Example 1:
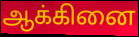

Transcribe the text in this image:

ஆக்கினை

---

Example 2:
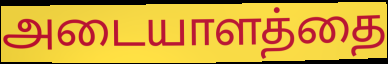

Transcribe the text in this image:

அடையாளத்தை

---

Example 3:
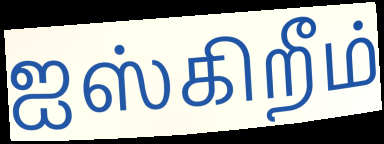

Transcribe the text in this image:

ஐஸ்கிறீம்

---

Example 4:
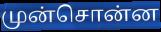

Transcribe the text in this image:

முன்சொன்ன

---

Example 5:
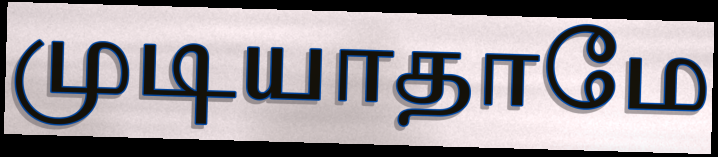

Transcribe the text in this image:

முடியாதாமே